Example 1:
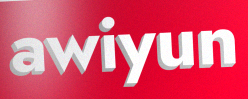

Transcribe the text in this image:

awiyun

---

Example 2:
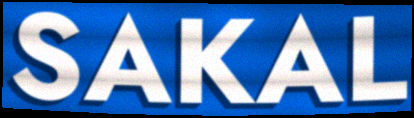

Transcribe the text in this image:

SAKAL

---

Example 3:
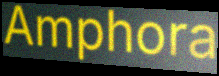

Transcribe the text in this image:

Amphora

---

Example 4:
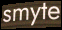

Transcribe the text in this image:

smyte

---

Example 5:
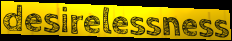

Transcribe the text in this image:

desirelessness